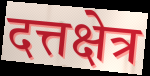
दत्तक्षेत्र